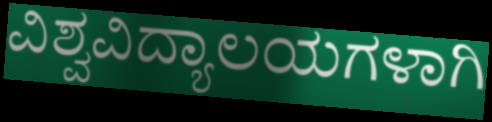
ವಿಶ್ವವಿದ್ಯಾಲಯಗಳಾಗಿ